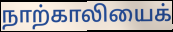
நாற்காலியைக்